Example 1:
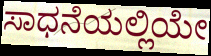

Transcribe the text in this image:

ಸಾಧನೆಯಲ್ಲಿಯೇ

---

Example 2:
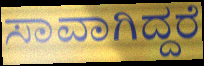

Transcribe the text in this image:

ಸಾವಾಗಿದ್ದರೆ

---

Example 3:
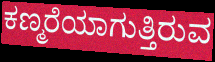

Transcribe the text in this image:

ಕಣ್ಮರೆಯಾಗುತ್ತಿರುವ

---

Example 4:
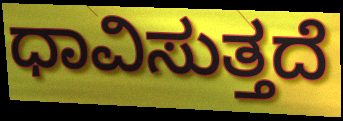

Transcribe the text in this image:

ಧಾವಿಸುತ್ತದೆ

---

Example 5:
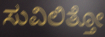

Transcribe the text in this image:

ಸುವಿಲಿತ್ತೋ